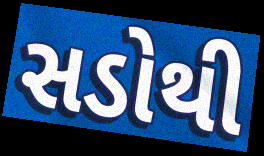
સડોથી